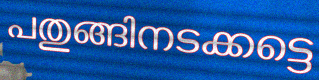
പതുങ്ങിനടക്കട്ടെ